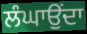
ਲੰਘਾਉਂਦਾ